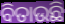
ବିତାଉଛି